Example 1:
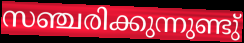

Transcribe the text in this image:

സഞ്ചരിക്കുന്നുണ്ടു്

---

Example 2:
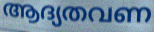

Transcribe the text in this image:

ആദ്യതവണ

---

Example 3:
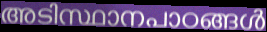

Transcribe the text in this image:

അടിസ്ഥാനപാഠങ്ങൾ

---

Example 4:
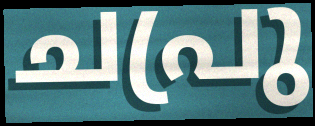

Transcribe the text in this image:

ചപ്രു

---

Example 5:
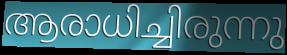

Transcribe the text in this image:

ആരാധിച്ചിരുന്നു